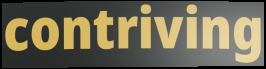
contriving